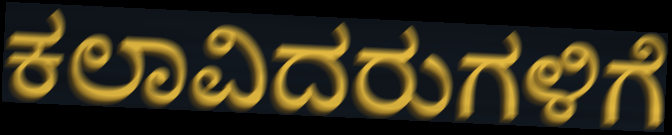
ಕಲಾವಿದರುಗಳಿಗೆ